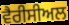
ਵੈਰੀਸੀਅਲ